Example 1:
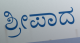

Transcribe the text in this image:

ಶ್ರೀಪಾದ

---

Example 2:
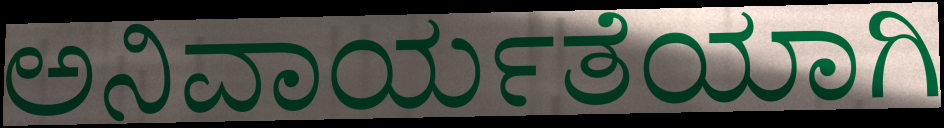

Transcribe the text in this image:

ಅನಿವಾರ್ಯತೆಯಾಗಿ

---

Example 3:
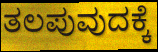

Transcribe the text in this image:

ತಲಪುವುದಕ್ಕೆ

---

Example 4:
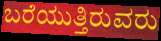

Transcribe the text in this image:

ಬರೆಯುತ್ತಿರುವರು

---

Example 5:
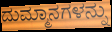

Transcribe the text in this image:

ದುಮ್ಮಾನಗಳನ್ನು